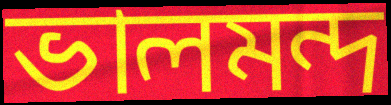
ভালমন্দ